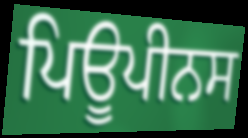
ਪਿਊਪੀਨਸ